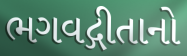
ભગવદ્ગીતાનો